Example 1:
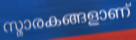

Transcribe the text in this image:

സ്മാരകങ്ങളാണ്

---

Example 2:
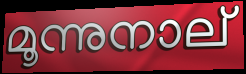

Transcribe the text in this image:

മൂന്നുനാല്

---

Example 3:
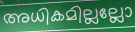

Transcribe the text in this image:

അധികമില്ലല്ലോ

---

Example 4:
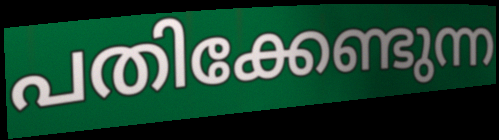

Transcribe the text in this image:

പതിക്കേണ്ടുന്ന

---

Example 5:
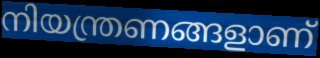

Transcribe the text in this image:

നിയന്ത്രണങ്ങളാണ്